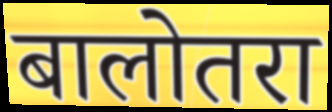
बालोतरा